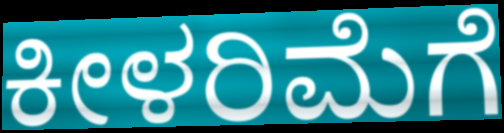
ಕೀಳರಿಮೆಗೆ